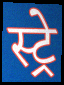
स्ट्रे